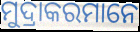
ମୁଦ୍ରାକରମାନେ